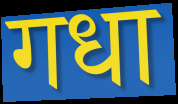
गधा